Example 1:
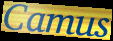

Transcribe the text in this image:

Camus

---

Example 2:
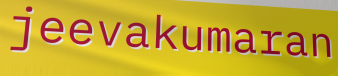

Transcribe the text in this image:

jeevakumaran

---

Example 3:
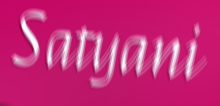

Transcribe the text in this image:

Satyani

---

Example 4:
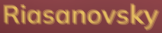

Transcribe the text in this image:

Riasanovsky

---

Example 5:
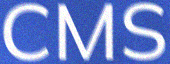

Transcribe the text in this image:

CMS